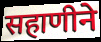
सहाणीने